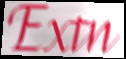
Extn